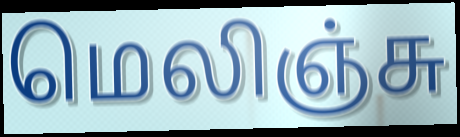
மெலிஞ்சு